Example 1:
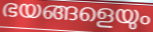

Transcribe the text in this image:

ഭയങ്ങളെയും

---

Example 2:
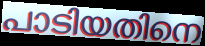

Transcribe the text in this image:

പാടിയതിനെ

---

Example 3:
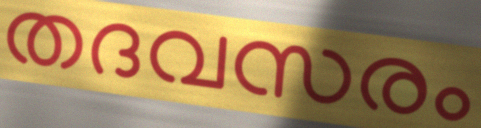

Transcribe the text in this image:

തദവസരം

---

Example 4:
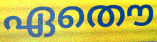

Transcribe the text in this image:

ഏതൌ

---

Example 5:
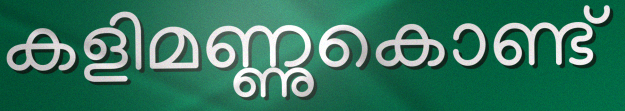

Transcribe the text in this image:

കളിമണ്ണുകൊണ്ട്